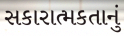
સકારાત્મકતાનું